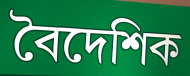
বৈদেশিক